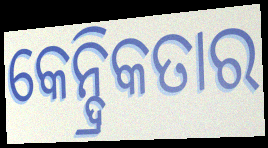
କେନ୍ଦ୍ରିକତାର